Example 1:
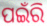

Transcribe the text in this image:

ପଇଁରି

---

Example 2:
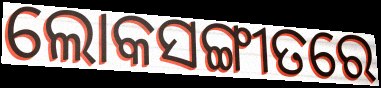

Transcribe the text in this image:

ଲୋକସଙ୍ଗୀତରେ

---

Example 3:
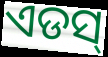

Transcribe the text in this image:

ଏଡସ୍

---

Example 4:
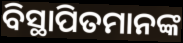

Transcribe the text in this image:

ବିସ୍ଥାପିତମାନଙ୍କ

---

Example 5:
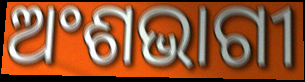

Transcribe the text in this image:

ଅଂଶଭାଗୀ